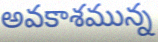
అవకాశమున్న